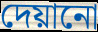
দেয়ানো